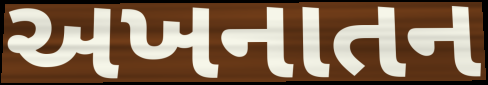
અખનાતન